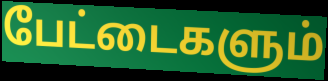
பேட்டைகளும்